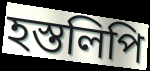
হস্তলিপি